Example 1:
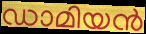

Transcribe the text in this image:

ഡാമിയൻ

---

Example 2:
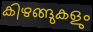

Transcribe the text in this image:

കിഴങ്ങുകളും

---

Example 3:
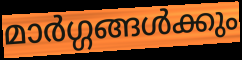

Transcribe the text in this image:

മാർഗ്ഗങ്ങൾക്കും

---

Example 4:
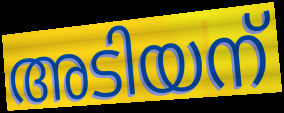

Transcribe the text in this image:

അടിയന്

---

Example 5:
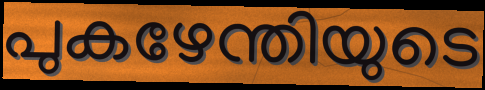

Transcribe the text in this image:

പുകഴേന്തിയുടെ